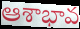
ఆశాభావ